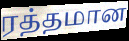
ரத்தமான